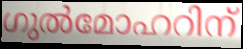
ഗുൽമോഹറിന്